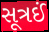
સૂત્રઈં